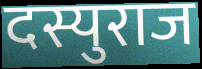
दस्युराज